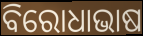
ବିରୋଧାଭାଷ